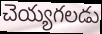
చెయ్యగలడు